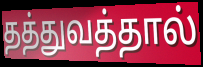
தத்துவத்தால்